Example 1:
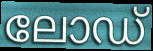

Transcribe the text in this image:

ലോഡ്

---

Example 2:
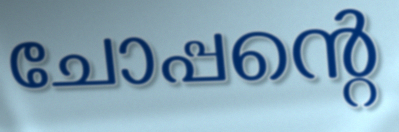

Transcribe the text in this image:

ചോപ്പന്റെ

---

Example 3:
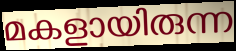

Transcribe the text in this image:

മകളായിരുന്ന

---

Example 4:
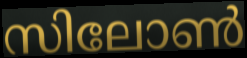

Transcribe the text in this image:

സിലോൺ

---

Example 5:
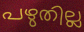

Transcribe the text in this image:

പഴുതില്ല